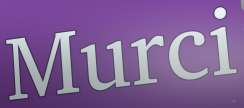
Murci